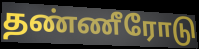
தண்ணீரோடு